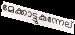
മേക്കാട്ടുകുന്നേല്